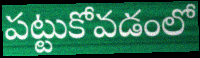
పట్టుకోవడంలో